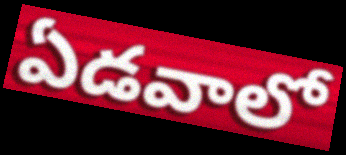
ఏడవాలో